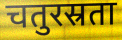
चतुरस्रता